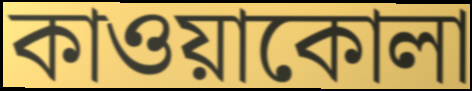
কাওয়াকোলা